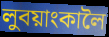
লুবয়াংকালৈ